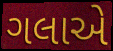
ગલાએ